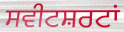
ਸਵੀਟਸ਼ਰਟਾਂ